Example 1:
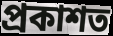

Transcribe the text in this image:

প্ৰকাশত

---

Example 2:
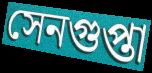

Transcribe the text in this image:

সেনগুপ্তা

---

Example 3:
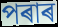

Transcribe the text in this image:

পৰাৰ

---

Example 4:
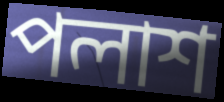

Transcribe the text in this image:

পলাশ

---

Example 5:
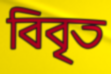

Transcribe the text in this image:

বিবৃত